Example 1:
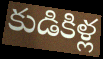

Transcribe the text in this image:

కుడికిళ్ల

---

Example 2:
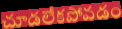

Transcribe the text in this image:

చూడలేకపోవడం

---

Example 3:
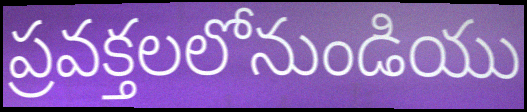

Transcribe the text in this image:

ప్రవక్తలలోనుండియు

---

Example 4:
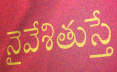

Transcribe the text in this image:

నైవేశితుస్తే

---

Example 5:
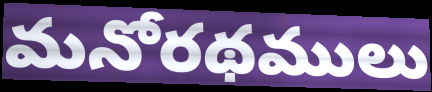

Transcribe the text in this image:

మనోరథములు